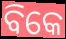
ବିକେ